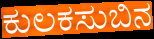
ಕುಲಕಸುಬಿನ